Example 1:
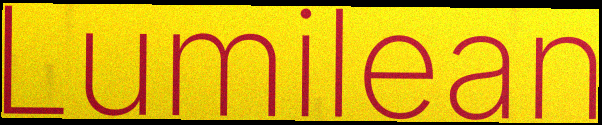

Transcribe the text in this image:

Lumilean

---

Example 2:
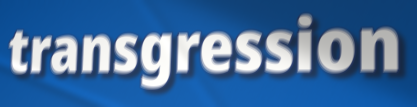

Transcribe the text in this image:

transgression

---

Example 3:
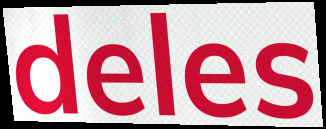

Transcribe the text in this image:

deles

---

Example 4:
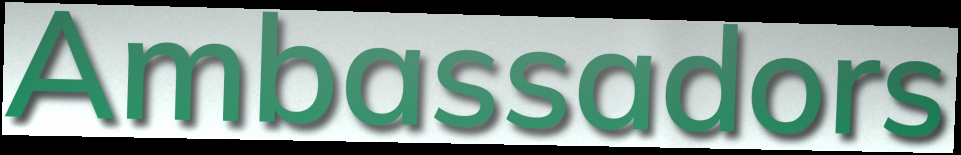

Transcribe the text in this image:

Ambassadors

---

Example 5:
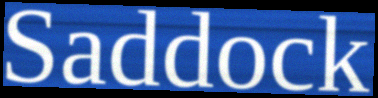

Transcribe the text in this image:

Saddock